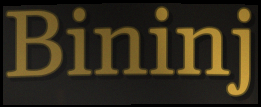
Bininj